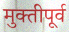
मुक्तीपूर्व